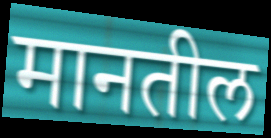
मानतील